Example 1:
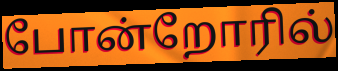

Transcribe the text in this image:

போன்றோரில்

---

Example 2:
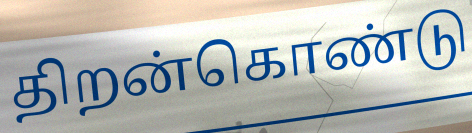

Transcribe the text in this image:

திறன்கொண்டு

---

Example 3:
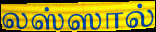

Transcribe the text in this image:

லஸ்ஸால்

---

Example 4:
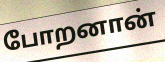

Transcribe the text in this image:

போறனான்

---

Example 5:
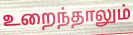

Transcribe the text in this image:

உறைந்தாலும்